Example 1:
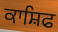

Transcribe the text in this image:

ਕਾਸ਼ਿਫ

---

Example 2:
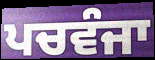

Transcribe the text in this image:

ਪਚਵੰਜਾ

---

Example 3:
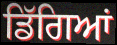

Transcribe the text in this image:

ਡਿੱਗਿਆਂ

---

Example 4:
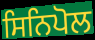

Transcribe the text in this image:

ਸਿਨਿਪੋਲ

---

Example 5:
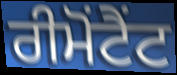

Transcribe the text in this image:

ਰੀਮੋਂਟੈਂਟ